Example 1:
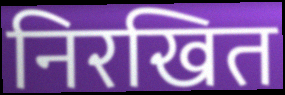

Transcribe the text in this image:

निरखित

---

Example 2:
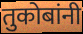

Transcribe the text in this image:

तुकोबांनी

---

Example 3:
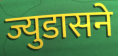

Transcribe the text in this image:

ज्युडासने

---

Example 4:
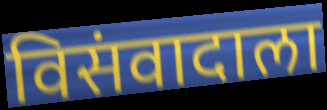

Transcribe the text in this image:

विसंवादाला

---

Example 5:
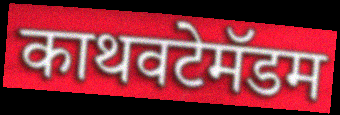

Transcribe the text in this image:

काथवटेमॅडम